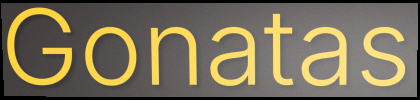
Gonatas